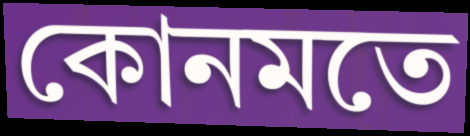
কোনমতে